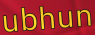
ubhun